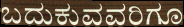
ಬದುಕುವವರಿಗೂ